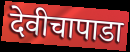
देवीचापाडा